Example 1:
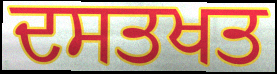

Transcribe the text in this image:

ਦਸਤਖਤ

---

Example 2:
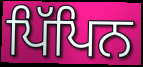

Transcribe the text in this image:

ਪਿੱਪਿਨ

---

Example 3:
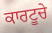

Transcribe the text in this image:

ਕਾਰਟੂਚੇ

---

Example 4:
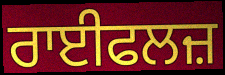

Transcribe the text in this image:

ਰਾਈਫਲਜ਼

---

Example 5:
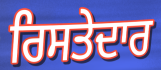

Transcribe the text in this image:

ਰਿਸਤੇਦਾਰ